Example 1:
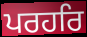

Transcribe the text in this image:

ਪਰਹਰਿ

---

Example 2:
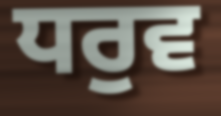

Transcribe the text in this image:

ਧਰੁਵ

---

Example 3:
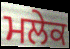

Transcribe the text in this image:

ਮਲੇਕ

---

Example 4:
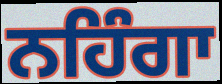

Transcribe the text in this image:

ਨਹਿੰਗਾ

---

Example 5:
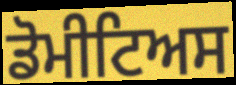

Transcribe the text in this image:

ਡੋਮੀਟਿਅਸ